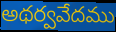
అథర్వవేదము